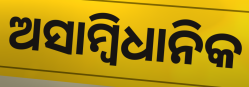
ଅସାମ୍ୱିଧାନିକ